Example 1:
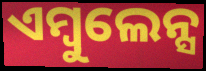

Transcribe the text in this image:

ଏମ୍ବୁଲେନ୍ସ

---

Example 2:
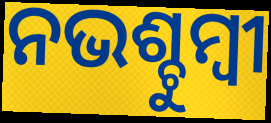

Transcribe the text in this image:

ନଭଶ୍ଚୁମ୍ବୀ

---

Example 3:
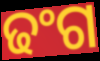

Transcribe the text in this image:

ଢଂଗ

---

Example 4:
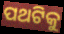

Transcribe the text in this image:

ପଥଟିକୁ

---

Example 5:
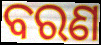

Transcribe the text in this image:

ବରଣ